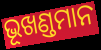
ଭୂଖଣ୍ଡମାନ